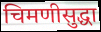
चिमणीसुद्धा